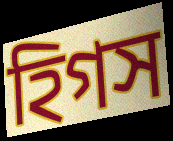
হিগস